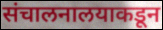
संचालनालयाकडून